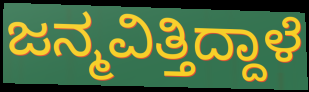
ಜನ್ಮವಿತ್ತಿದ್ದಾಳೆ